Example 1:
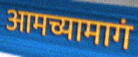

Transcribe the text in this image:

आमच्यामागं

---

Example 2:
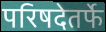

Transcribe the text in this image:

परिषदेतर्फे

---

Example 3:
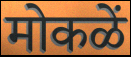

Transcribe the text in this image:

मोकळें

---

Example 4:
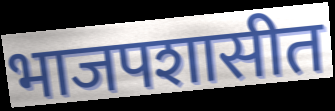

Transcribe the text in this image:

भाजपशासीत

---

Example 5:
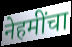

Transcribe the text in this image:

नेहमींचा